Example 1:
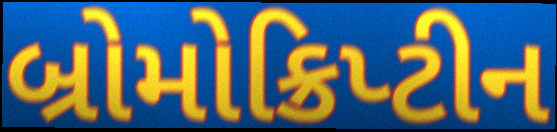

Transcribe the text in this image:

બ્રોમોક્રિપ્ટીન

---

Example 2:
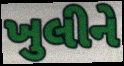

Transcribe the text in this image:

ખુલીને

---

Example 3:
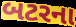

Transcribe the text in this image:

બટરના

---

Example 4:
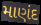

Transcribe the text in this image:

માણંદ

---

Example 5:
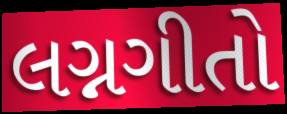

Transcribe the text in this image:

લગ્નગીતો